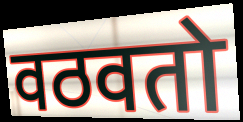
वठवतो